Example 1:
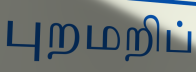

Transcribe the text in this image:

புறமறிப்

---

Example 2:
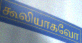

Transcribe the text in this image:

கூலியாகவோ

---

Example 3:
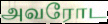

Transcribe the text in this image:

அவரோட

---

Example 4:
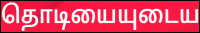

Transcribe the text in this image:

தொடியையுடைய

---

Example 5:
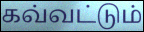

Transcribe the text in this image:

கவ்வட்டும்